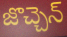
జొచ్చెన్